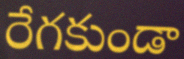
రేగకుండా